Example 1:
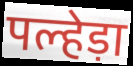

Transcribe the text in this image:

पल्हेड़ा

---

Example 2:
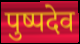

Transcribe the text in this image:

पुष्पदेव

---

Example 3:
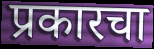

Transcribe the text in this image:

प्रकारचा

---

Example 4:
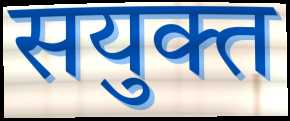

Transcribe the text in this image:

सयुक्‍त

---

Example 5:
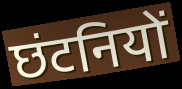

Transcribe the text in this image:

छंटनियों